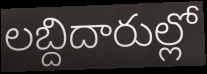
లబ్దిదారుల్లో